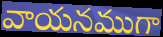
వాయనముగా